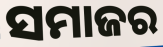
ସମାଜର